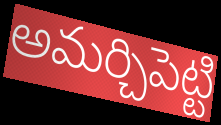
అమర్చిపెట్టి